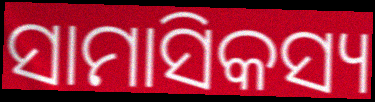
ସାମାସିକସ୍ୟ